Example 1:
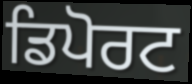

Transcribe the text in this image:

ਡਿਪੋਰਟ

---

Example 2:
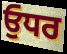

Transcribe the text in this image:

ਓੁਧਰ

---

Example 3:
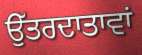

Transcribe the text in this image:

ਉੱਤਰਦਾਤਾਵਾਂ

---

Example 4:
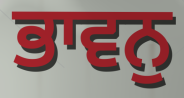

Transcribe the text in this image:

ਭਾਵਨੁ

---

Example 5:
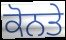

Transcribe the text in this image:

ਕੋਨਤੇ